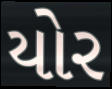
યોર